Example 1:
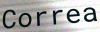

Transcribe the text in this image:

Correa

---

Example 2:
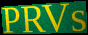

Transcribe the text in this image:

PRVs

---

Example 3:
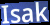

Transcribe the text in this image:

Isak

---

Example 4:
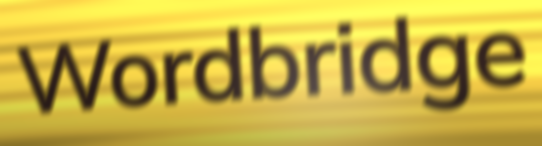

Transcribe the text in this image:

Wordbridge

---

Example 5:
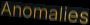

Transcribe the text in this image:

Anomalies